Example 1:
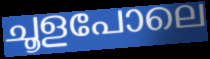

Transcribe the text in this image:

ചൂളപോലെ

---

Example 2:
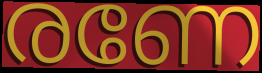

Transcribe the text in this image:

രണേ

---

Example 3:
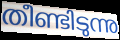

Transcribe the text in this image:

തീണ്ടിടുന്നു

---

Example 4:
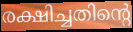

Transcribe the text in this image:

രക്ഷിച്ചതിന്റെ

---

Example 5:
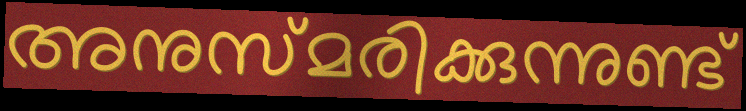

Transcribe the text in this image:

അനുസ്മരിക്കുന്നുണ്ട്